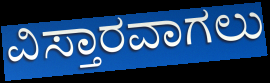
ವಿಸ್ತಾರವಾಗಲು